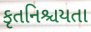
કૃતનિશ્ચયતા